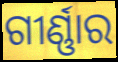
ଗୀର୍ଣ୍ଣାର